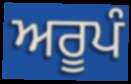
ਅਰੂਪੰ